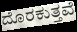
ದೊರಕುತ್ತವೆ